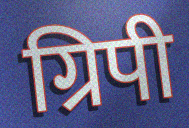
ग्रिपी